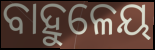
ବାହୁଳେୟ